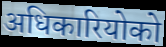
अधिकारियोको